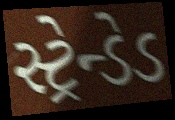
સ્ટ્રેન્ડેડ